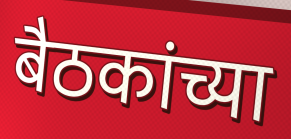
बैठकांच्या